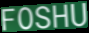
FOSHU